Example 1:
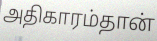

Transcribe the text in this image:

அதிகாரம்தான்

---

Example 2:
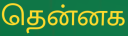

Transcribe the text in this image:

தென்னக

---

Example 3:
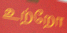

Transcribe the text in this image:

உற்றோ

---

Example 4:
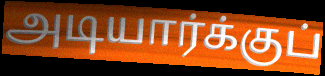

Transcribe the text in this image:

அடியார்க்குப்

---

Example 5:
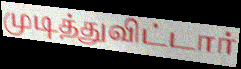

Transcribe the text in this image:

முடித்துவிட்டார்